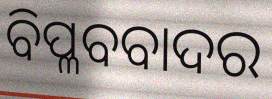
ବିପ୍ଳବବାଦର